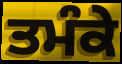
ਤਮੰਕੇ